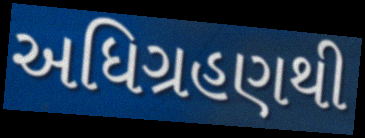
અધિગ્રહણથી